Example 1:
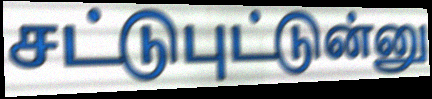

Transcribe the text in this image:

சட்டுபுட்டுன்னு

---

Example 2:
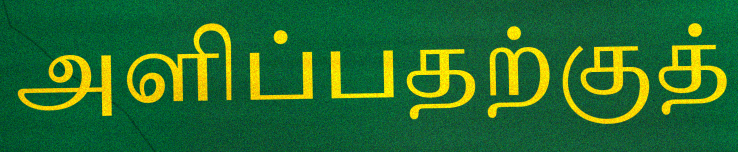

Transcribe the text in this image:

அளிப்பதற்குத்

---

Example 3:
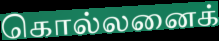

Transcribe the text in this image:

கொல்லனைக்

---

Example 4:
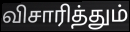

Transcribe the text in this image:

விசாரித்தும்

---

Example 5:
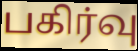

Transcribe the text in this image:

பகிர்வு